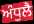
ਅੰਧੁਲੈ